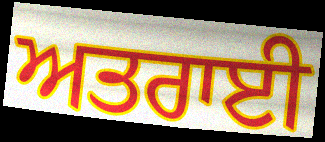
ਅਤਰਾਈ